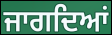
ਜਾਗਦਿਆਂ